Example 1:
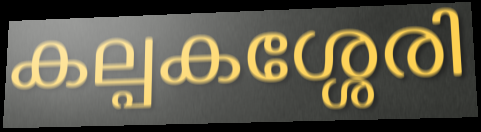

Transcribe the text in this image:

കല്പകശ്ശേരി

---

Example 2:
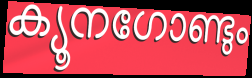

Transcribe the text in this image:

ക്യൂനഗോണ്ടും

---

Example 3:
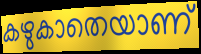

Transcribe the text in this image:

കഴുകാതെയാണ്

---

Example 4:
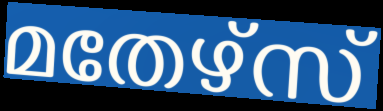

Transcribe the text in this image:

മതേഴ്സ്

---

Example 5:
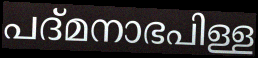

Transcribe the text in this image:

പദ്മനാഭപിള്ള